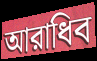
আরাধিব